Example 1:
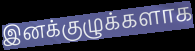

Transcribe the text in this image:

இனக்குழுக்களாக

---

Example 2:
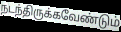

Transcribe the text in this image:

நடந்திருக்கவேண்டும்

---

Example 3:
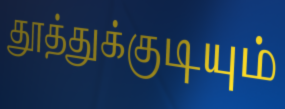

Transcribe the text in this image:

தூத்துக்குடியும்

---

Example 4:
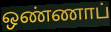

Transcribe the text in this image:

ஒண்ணாப்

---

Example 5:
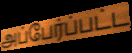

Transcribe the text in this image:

அப்பேர்ப்பட்ட